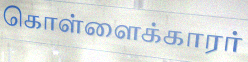
கொள்ளைக்காரர்